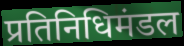
प्रतिनिधिमंडल